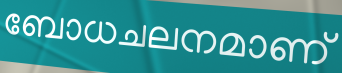
ബോധചലനമാണ്